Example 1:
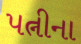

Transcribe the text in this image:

પત્નીના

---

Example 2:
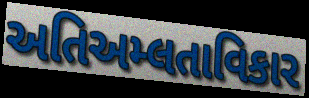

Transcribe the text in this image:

અતિઅમ્લતાવિકાર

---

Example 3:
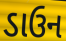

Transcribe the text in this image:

ડાઉન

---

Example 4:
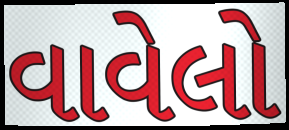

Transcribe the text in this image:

વાવેલો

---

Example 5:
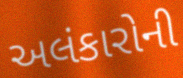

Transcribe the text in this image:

અલંકારોની